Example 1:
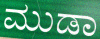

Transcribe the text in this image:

ಮುಡಾ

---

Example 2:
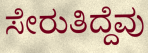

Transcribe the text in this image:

ಸೇರುತಿದ್ದೆವು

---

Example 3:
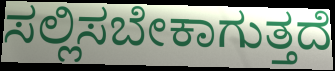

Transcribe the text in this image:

ಸಲ್ಲಿಸಬೇಕಾಗುತ್ತದೆ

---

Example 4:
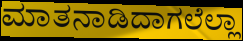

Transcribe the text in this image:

ಮಾತನಾಡಿದಾಗಲೆಲ್ಲಾ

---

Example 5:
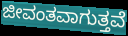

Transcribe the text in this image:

ಜೀವಂತವಾಗುತ್ತವೆ